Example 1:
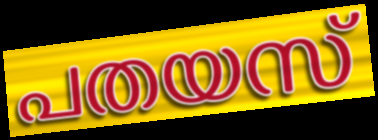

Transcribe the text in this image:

പതയസ്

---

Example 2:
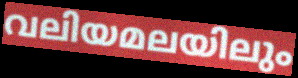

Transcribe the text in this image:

വലിയമലയിലും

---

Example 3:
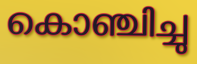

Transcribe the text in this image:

കൊഞ്ചിച്ചു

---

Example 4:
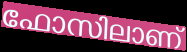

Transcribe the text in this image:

ഫോസിലാണ്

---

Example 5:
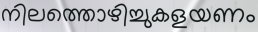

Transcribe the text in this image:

നിലത്തൊഴിച്ചുകളയണം